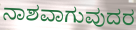
ನಾಶವಾಗುವುದರ